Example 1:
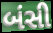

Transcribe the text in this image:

બંસી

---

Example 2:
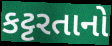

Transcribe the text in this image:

કટ્ટરતાનો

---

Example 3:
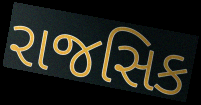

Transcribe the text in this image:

રાજસિક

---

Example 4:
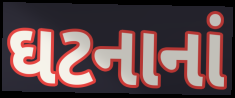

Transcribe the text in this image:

ઘટનાનાં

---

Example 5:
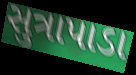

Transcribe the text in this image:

સુત્રાપાડા